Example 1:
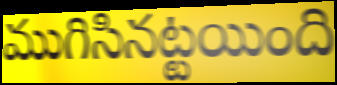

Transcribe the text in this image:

ముగిసినట్టయింది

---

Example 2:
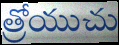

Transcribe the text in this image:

త్రోయుచు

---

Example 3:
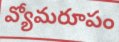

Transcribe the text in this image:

వ్యోమరూపం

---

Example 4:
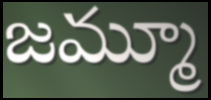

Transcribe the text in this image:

జమ్మూ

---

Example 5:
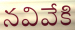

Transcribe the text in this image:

నవివేకి